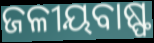
ଜଳୀୟବାଷ୍ଫ